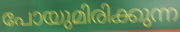
പോയുമിരിക്കുന്ന